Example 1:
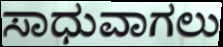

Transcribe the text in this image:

ಸಾಧುವಾಗಲು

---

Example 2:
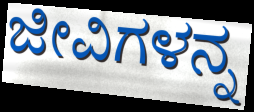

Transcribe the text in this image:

ಜೀವಿಗಳನ್ನ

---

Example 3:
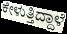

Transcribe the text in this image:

ಕೇಳುತ್ತಿದ್ದಾಳೆ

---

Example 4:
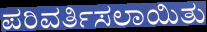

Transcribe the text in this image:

ಪರಿವರ್ತಿಸಲಾಯಿತು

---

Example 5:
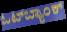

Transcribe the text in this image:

ಓಟ್‌ಬ್ಯಾಂಕ್